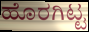
ಹೊರಗಿಟ್ಟ